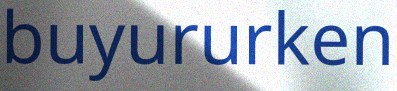
buyururken